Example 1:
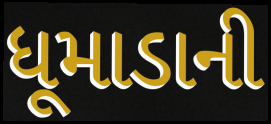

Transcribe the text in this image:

ધૂમાડાની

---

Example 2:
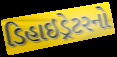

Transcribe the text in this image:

ડિહાઇડ્રેટરનો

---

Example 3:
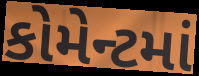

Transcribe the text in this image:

કોમેન્ટમાં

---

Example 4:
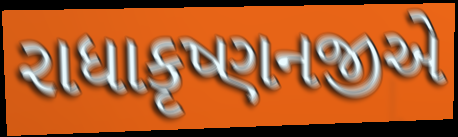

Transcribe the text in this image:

રાધાકૃષ્ણનજીએ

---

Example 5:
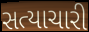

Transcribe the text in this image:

સત્યાચારી